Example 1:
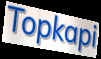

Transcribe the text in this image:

Topkapi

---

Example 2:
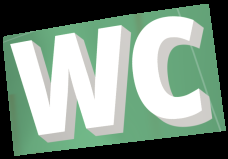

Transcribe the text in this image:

WC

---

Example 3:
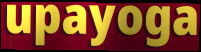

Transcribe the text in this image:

upayoga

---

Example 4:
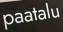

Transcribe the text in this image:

paatalu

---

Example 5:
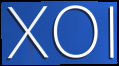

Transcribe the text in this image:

XOI